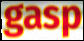
gasp